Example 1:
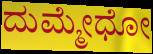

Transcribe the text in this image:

ದುಮ್ಮೇಧೋ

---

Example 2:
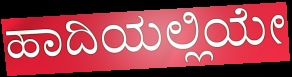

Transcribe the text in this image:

ಹಾದಿಯಲ್ಲಿಯೇ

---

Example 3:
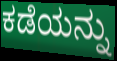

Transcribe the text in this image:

ಕಡೆಯನ್ನು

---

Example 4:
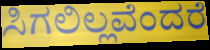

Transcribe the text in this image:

ಸಿಗಲಿಲ್ಲವೆಂದರೆ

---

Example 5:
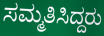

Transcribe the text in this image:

ಸಮ್ಮತಿಸಿದ್ದರು